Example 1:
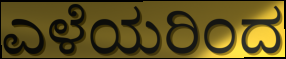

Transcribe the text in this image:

ಎಳೆಯರಿಂದ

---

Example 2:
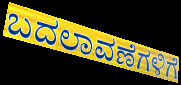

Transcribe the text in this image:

ಬದಲಾವಣೆಗಳಿಗೆ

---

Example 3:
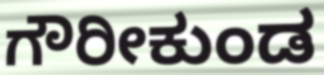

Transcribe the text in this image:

ಗೌರೀಕುಂಡ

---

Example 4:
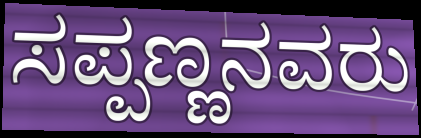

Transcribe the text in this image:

ಸಪ್ಪಣ್ಣನವರು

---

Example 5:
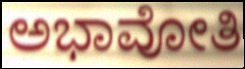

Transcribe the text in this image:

ಅಭಾವೋತಿ